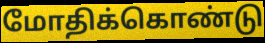
மோதிக்கொண்டு